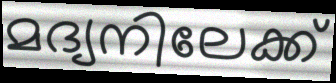
മദ്യനിലേക്ക്